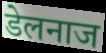
डेलनाज